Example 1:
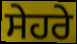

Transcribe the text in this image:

ਸੇਹਰੇ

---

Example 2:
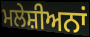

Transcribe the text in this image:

ਮਲੇਸ਼ੀਅਨਾਂ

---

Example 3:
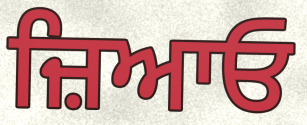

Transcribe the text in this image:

ਜ਼ਿਆਓ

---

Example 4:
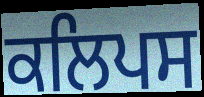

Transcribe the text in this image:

ਕਲਿਪਸ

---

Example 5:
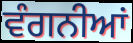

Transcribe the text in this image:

ਵੰਗਨੀਆਂ